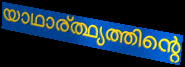
യാഥാര്ത്ഥ്യത്തിന്റെ